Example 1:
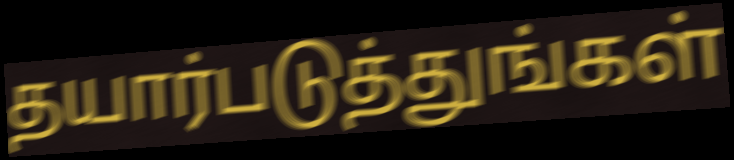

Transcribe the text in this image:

தயார்படுத்துங்கள்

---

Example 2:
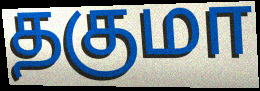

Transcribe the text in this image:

தகுமா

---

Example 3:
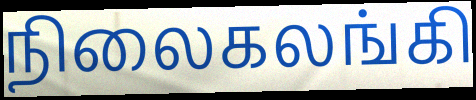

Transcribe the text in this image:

நிலைகலங்கி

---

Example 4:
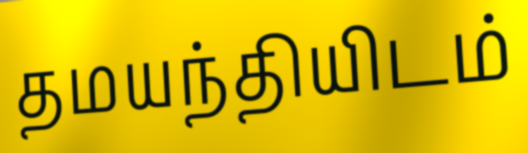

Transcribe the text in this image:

தமயந்தியிடம்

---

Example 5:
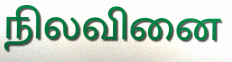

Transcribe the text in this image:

நிலவினை